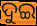
ଦୁଇ